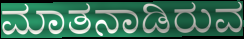
ಮಾತನಾಡಿರುವ